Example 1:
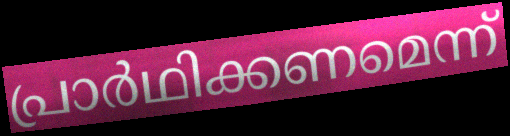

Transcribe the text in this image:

പ്രാർഥിക്കണമെന്ന്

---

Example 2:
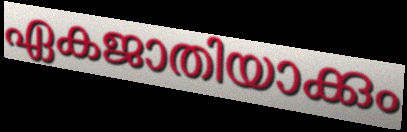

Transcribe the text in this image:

ഏകജാതിയാക്കും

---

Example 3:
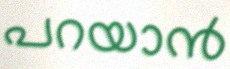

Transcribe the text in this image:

പറയാൻ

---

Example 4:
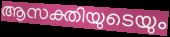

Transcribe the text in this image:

ആസക്തിയുടെയും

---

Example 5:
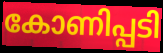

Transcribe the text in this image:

കോണിപ്പടി